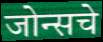
जोन्सचे